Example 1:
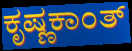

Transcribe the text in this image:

ಕೃಷ್ಣಕಾಂತ್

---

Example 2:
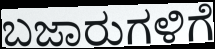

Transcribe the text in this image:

ಬಜಾರುಗಳಿಗೆ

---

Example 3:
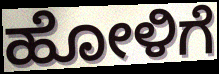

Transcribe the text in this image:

ಹೋಳಿಗೆ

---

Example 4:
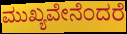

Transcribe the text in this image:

ಮುಖ್ಯವೇನೆಂದರೆ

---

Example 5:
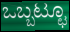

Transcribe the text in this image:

ಒಬ್ಬಟ್ಟೂ